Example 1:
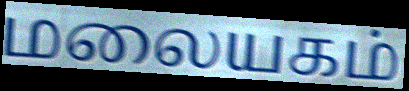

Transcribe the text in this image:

மலையகம்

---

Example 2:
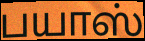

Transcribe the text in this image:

பயாஸ்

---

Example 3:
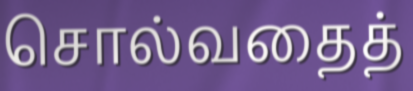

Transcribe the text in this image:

சொல்வதைத்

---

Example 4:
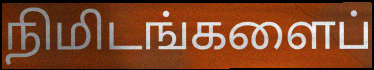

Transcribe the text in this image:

நிமிடங்களைப்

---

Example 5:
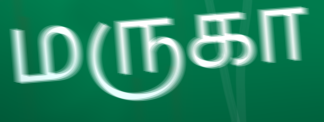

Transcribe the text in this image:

மருகா